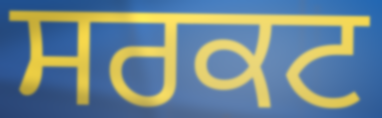
ਸਰਕਟ